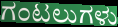
ಗಂಟಲುಗಳು